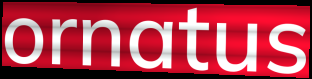
ornatus